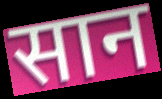
सान